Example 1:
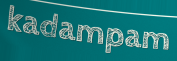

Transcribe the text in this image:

kadampam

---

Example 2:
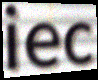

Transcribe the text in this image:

iec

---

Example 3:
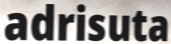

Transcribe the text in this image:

adrisuta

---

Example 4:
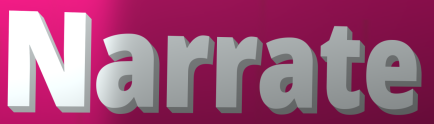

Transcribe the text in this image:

Narrate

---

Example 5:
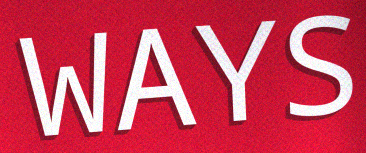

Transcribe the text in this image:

WAYS